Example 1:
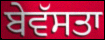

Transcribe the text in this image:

ਬੇਵੱਸਤਾ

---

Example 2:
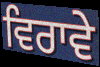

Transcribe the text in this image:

ਵਿਰਾਵੇ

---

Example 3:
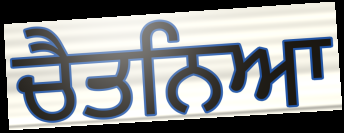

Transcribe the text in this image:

ਚੈਤਨਿਆ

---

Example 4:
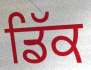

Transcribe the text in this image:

ਡਿੱਕ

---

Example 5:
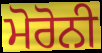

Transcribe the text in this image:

ਮੋਰੋਨੀ